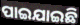
ପାଇଯାଇଛି